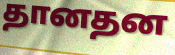
தானதன